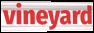
vineyard